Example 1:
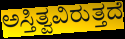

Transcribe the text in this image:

ಅಸ್ತಿತ್ವವಿರುತ್ತದೆ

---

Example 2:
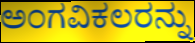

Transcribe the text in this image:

ಅಂಗವಿಕಲರನ್ನು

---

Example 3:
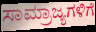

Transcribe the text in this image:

ಸಾಮ್ರಾಜ್ಯಗಳಿಗೆ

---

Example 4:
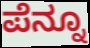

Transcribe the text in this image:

ಪೆನ್ನೂ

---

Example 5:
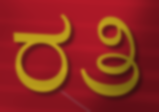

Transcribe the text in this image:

ರತಿ